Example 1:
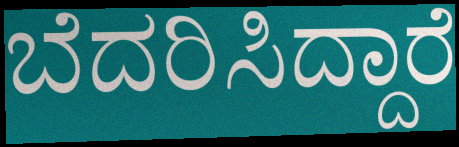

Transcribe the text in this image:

ಬೆದರಿಸಿದ್ದಾರೆ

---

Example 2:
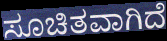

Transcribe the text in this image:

ಸೂಚಿತವಾಗಿದೆ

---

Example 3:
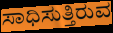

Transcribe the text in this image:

ಸಾಧಿಸುತ್ತಿರುವ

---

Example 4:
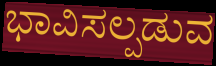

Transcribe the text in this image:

ಭಾವಿಸಲ್ಪಡುವ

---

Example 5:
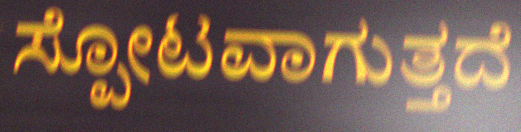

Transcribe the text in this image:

ಸ್ಪೋಟವಾಗುತ್ತದೆ